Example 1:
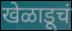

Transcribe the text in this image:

खेळाडूचं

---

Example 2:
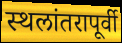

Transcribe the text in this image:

स्थलांतरापूर्वी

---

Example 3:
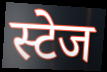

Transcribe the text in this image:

स्टेज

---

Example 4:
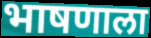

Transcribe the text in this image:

भाषणाला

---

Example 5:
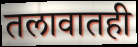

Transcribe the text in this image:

तलावातही